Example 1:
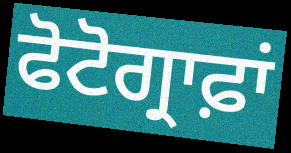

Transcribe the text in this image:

ਫੋਟੋਗ੍ਰਾਫ਼ਾਂ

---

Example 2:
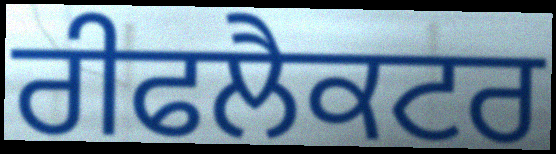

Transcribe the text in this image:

ਰੀਫਲੈਕਟਰ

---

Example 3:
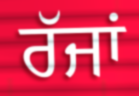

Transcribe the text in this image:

ਰੱਜਾਂ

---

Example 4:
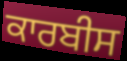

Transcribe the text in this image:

ਕਾਰਬੀਸ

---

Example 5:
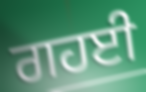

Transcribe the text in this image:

ਗਹਈ